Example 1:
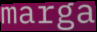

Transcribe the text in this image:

marga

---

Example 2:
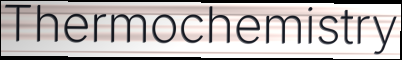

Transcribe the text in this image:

Thermochemistry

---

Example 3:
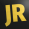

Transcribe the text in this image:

JR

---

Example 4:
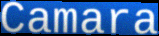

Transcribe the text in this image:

Camara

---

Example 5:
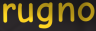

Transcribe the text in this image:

rugno